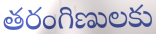
తరంగిణులకు